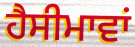
ਹੈਸੀਮਾਵਾਂ